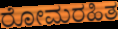
ರೋಮರಹಿತ